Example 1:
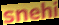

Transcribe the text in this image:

snehi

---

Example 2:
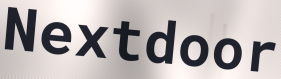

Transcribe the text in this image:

Nextdoor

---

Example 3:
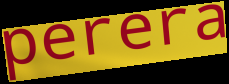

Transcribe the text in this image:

perera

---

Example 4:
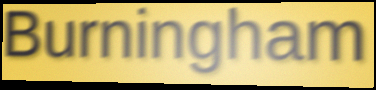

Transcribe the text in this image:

Burningham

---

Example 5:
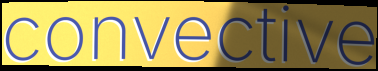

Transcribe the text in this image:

convective